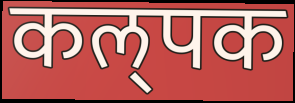
कल्पक